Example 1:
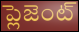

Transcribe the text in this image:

ప్లెజెంట్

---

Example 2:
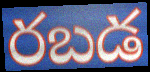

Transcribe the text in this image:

రబడ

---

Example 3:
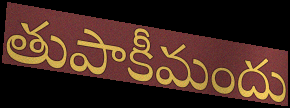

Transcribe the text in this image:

తుపాకీమందు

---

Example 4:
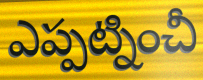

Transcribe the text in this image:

ఎప్పట్నించీ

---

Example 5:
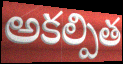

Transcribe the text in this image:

అకల్పిత